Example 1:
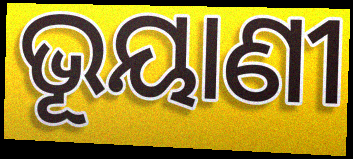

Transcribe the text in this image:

ଭୂୟାଣୀ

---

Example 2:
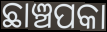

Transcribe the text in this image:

ଛାଞ୍ଚପକା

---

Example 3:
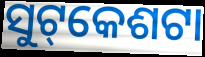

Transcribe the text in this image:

ସୁଟ୍‌କେଶଟା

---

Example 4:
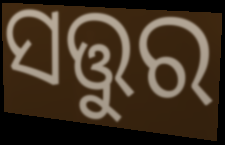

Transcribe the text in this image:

ସତ୍ତୁର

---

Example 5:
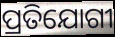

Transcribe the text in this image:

ପ୍ରତିଯୋଗୀ